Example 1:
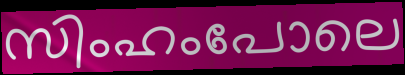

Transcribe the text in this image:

സിംഹംപോലെ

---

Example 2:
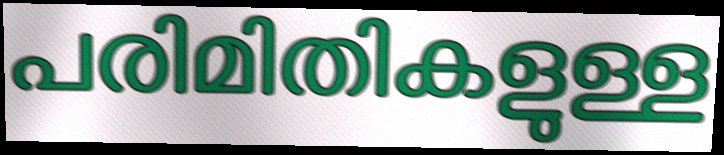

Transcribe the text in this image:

പരിമിതികളുള്ള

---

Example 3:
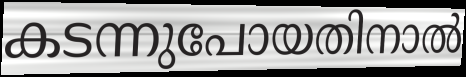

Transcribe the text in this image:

കടന്നുപോയതിനാൽ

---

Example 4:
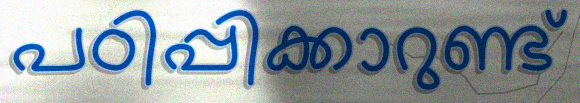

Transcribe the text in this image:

പഠിപ്പിക്കാറുണ്ട്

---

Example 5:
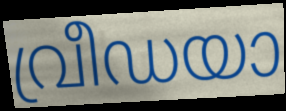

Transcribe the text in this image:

വ്രീഡയാ